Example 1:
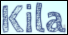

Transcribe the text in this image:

Kila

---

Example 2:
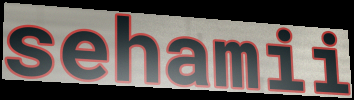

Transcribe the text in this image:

sehamii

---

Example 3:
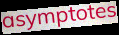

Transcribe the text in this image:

asymptotes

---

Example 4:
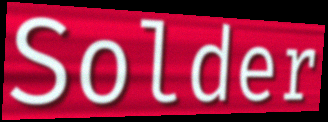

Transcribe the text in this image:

Solder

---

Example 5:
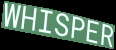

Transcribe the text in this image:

WHISPER